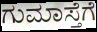
ಗುಮಾಸ್ತೆಗೆ